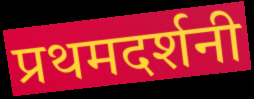
प्रथमदर्शनी